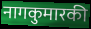
नागकुमारकी